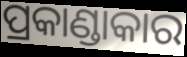
ପ୍ରକାଣ୍ଡାକାର